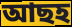
আছহ